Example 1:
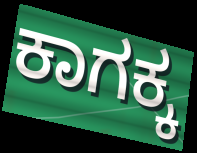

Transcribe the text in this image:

ಕಾಗಕ್ಕ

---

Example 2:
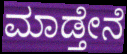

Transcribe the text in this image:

ಮಾಡ್ತೇನೆ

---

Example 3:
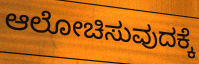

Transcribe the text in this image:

ಆಲೋಚಿಸುವುದಕ್ಕೆ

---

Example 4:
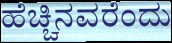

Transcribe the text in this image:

ಹೆಚ್ಚಿನವರೆಂದು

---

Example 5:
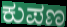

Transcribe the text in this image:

ಕುಪಣ